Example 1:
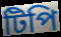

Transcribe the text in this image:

টিপি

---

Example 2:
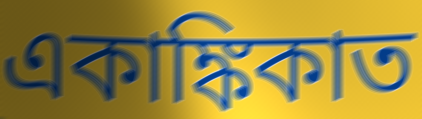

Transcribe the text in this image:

একাঙ্কিকাত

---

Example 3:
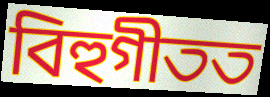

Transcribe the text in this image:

বিহুগীতত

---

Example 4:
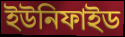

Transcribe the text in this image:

ইউনিফাইড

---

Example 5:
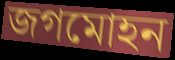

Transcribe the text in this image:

জগমোহন